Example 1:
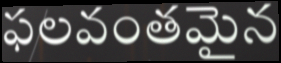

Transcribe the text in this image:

ఫలవంతమైన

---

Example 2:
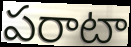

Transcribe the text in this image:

పరాటా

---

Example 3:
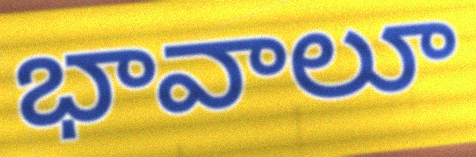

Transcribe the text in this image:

భావాలూ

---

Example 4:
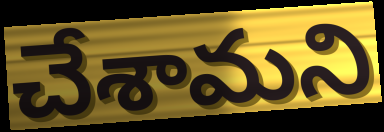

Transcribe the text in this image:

చేశామని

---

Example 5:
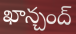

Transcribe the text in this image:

ఖాన్చంద్